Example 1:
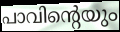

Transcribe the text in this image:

പാവിന്റെയും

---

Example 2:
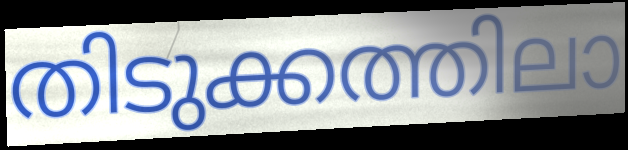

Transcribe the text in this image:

തിടുക്കത്തിലാ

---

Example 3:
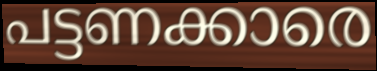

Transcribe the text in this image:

പട്ടണക്കാരെ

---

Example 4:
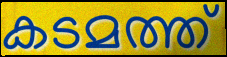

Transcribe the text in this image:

കടമത്ത്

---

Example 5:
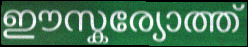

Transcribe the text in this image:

ഈസ്കര്യോത്ത്